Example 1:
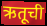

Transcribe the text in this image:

ऋतूची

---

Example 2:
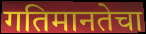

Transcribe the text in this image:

गतिमानतेचा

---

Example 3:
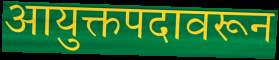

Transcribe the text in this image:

आयुक्तपदावरून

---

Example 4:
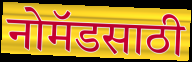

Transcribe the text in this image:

नोमॅडसाठी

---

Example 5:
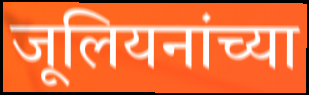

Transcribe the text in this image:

जूलियनांच्या